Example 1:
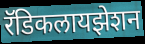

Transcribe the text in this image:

रॅडिकलायझेशन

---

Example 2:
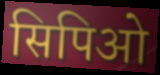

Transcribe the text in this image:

सिपिओ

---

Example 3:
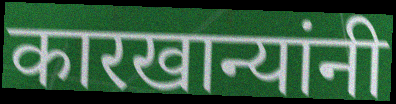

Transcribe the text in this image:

कारखान्यांनी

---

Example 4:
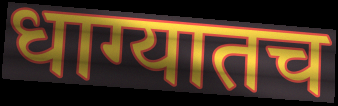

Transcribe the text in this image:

धाग्यातच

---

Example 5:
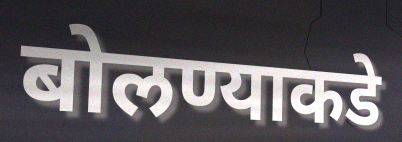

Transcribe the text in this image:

बोलण्याकडे